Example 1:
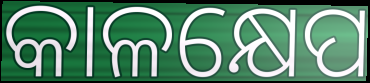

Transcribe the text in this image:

କାଳକ୍ଷେପ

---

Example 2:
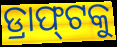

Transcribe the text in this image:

ଡ୍ରାଫ୍‌ଟକୁ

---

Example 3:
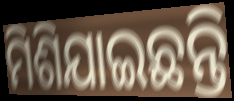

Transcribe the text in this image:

ମିଶିଯାଇଛନ୍ତି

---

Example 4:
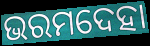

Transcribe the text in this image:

ଭରମଦେହା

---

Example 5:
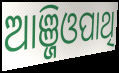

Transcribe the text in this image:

ଆଞ୍ଜିଓପାଥି